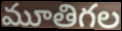
మూతిగల